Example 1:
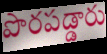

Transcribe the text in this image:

పొరపడ్డారు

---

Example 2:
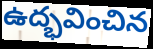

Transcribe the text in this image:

ఉద్భవించిన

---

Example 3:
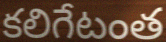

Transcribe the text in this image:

కలిగేటంత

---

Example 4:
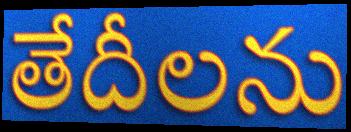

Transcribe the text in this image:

తేదీలను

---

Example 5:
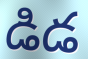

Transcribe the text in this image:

డిడ